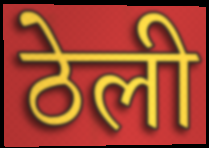
ठेली